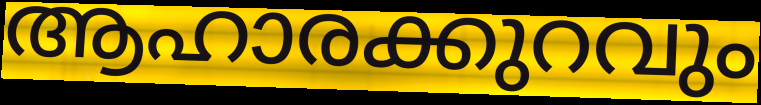
ആഹാരക്കുറവും